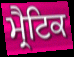
ਮ੍ਰੈਟਿਕ